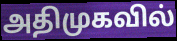
அதிமுகவில்